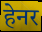
हेनर